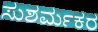
ಸುಶರ್ಮಕರ